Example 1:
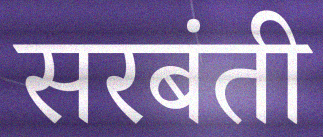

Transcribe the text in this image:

सरबंती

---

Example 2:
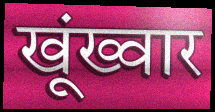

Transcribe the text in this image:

खूंख्वार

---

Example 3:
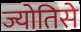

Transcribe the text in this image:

ज्योतिसे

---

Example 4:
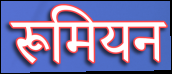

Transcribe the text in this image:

रूमियन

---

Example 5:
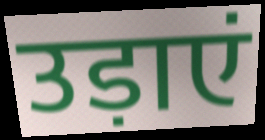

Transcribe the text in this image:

उड़ाएं